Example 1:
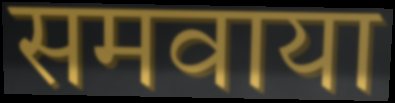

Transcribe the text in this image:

समवाया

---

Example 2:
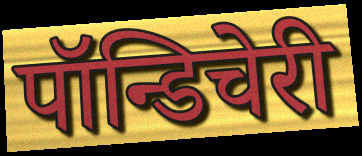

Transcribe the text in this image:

पॉन्डिचेरी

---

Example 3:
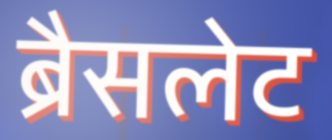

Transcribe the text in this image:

ब्रैसलेट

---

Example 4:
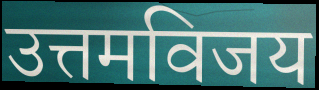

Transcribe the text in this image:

उत्तमविजय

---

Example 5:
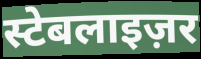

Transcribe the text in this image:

स्टेबलाइज़र